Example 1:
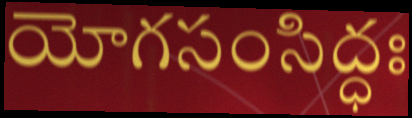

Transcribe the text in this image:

యోగసంసిద్ధః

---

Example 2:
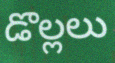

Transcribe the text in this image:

డొల్లలు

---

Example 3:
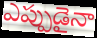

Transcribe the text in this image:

ఎప్పుడైనా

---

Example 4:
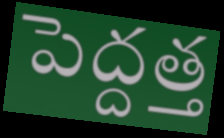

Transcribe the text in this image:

పెద్దత్త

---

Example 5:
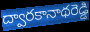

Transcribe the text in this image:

ద్వారకానాథరెడ్డి